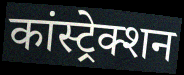
कांस्ट्रेक्शन